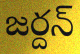
జర్దన్